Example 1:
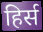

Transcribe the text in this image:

हिर्स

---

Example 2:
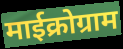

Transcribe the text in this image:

माईक्रोग्राम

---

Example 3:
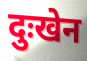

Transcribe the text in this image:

दुःखेन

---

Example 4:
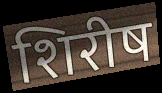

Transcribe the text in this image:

शिरीष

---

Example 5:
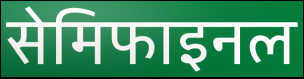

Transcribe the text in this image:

सेमिफाइनल